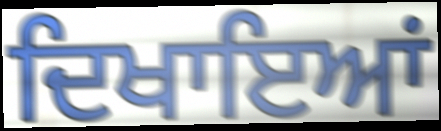
ਦਿਖਾਇਆਂ